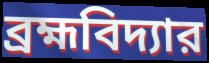
ব্রহ্মবিদ্যার